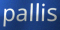
pallis